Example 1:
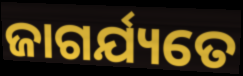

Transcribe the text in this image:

ଜାଗର୍ଯ୍ୟତେ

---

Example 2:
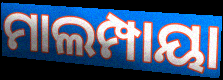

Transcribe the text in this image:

ମାଲମ୍ପାୟା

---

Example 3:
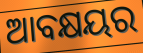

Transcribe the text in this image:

ଆବକ୍ଷୟର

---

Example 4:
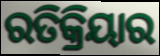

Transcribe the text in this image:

ରତିକ୍ରିୟାର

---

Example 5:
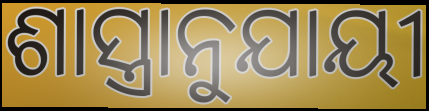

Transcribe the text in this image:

ଶାସ୍ତ୍ରାନୁଯାୟୀ